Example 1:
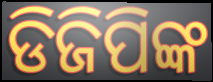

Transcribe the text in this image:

ଡିଜିପିଙ୍କ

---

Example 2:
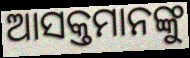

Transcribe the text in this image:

ଆସକ୍ତମାନଙ୍କୁ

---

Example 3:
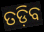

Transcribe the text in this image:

ତଡ଼ିବ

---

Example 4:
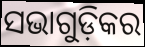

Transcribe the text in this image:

ସଭାଗୁଡ଼ିକର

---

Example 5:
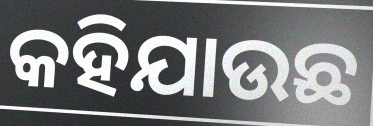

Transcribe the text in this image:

କହିଯାଉଛ